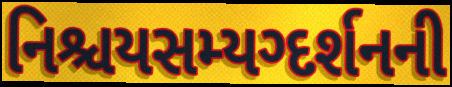
નિશ્ચયસમ્યગ્દર્શનની